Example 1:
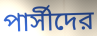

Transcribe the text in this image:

পার্সীদের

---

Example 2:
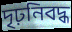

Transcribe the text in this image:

দৃঢ়নিবদ্ধ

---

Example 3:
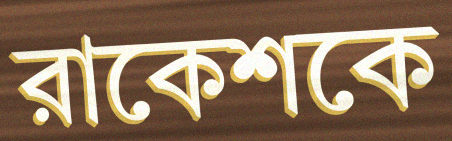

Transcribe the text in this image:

রাকেশকে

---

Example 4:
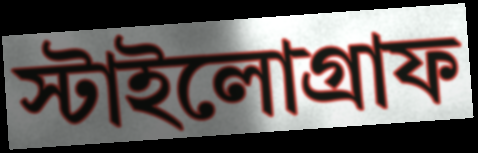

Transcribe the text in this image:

স্টাইলোগ্রাফ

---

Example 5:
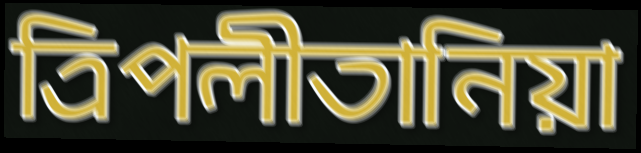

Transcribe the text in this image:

ত্রিপলীতানিয়া